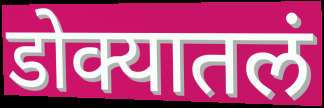
डोक्यातलं